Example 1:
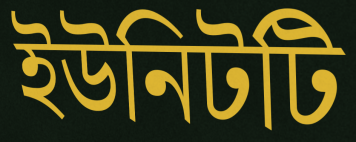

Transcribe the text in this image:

ইউনিটটি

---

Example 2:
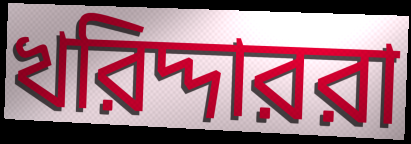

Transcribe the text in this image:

খরিদ্দাররা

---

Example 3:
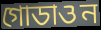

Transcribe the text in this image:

গোডাওন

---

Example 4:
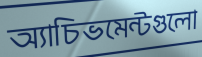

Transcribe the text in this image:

অ্যাচিভমেন্টগুলো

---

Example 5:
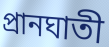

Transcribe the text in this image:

প্রানঘাতী